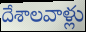
దేశాలవాళ్లు